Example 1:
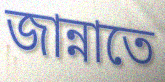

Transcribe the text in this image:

জান্নাতে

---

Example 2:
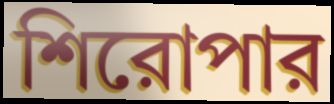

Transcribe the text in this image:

শিরোপার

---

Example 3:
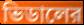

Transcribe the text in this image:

ভিডালের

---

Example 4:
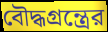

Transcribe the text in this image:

বৌদ্ধগ্রন্ত্রের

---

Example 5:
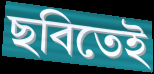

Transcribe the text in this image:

ছবিতেই